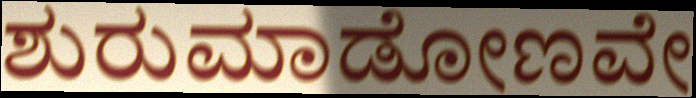
ಶುರುಮಾಡೋಣವೇ